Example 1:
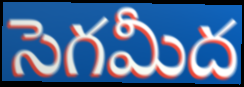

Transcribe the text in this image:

సెగమీద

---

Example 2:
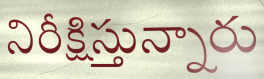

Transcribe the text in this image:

నిరీక్షిస్తున్నారు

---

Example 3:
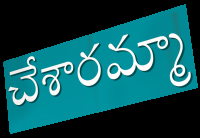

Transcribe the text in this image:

చేశారమ్మా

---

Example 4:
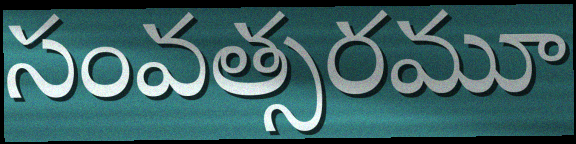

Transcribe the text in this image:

సంవత్సరమూ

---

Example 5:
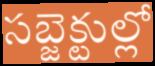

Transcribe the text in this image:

సబ్జెక్టుల్లో